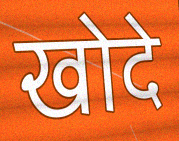
खोदे